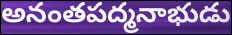
అనంతపద్మనాభుడు